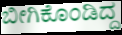
ಬೀಗಿಕೊಂಡಿದ್ದ